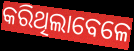
କରିଥିଲାବେଳେ